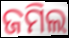
ଜମିଲ